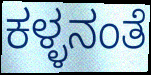
ಕಳ್ಳನಂತೆ